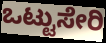
ಒಟ್ಟುಸೇರಿ